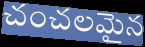
చంచలమైన